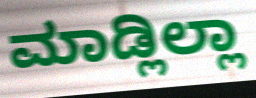
ಮಾಡ್ಲಿಲ್ಲಾ